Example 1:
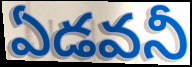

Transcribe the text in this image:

ఏడవనీ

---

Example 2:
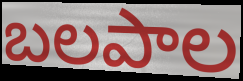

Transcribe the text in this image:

బలపాల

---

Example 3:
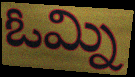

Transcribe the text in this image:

ఓమ్ని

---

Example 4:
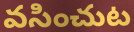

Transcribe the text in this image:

వసించుట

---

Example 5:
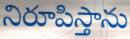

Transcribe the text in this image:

నిరూపిస్తాను